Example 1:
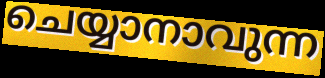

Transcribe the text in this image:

ചെയ്യാനാവുന്ന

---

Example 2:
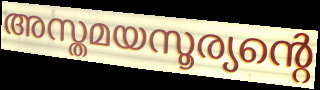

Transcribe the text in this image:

അസ്തമയസൂര്യന്റെ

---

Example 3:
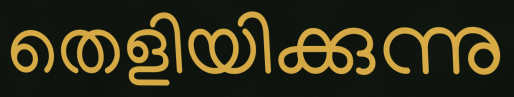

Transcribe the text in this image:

തെളിയിക്കുന്നു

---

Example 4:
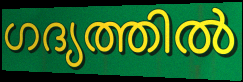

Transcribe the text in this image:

ഗദ്യത്തിൽ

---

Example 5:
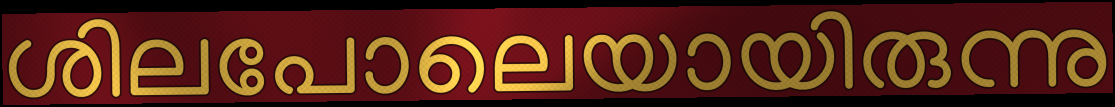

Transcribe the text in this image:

ശിലപോലെയായിരുന്നു